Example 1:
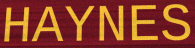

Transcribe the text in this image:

HAYNES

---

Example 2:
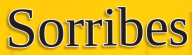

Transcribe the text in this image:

Sorribes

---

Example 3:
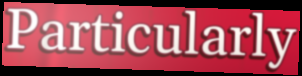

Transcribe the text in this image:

Particularly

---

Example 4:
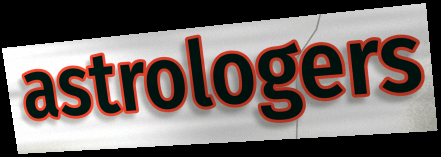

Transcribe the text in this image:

astrologers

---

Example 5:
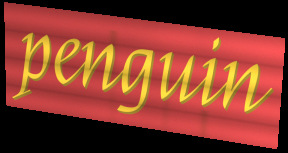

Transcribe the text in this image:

penguin